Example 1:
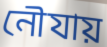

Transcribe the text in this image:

নৌযায়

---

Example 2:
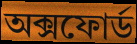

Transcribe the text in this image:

অক্সফোৰ্ড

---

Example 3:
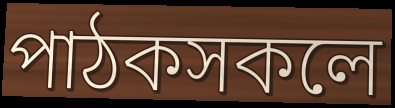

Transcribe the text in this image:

পাঠকসকলে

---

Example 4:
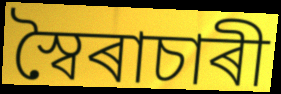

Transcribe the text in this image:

স্বৈৰাচাৰী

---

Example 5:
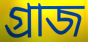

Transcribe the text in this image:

গ্ৰাজ